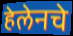
हेलेनचे